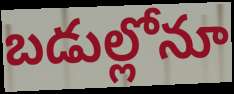
బడుల్లోనూ